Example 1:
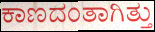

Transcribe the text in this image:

ಕಾಣದಂತಾಗಿತ್ತು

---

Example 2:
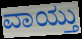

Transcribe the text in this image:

ವಾಯ್ತು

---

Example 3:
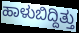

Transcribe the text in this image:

ಹಾಳುಬಿದ್ದಿತ್ತು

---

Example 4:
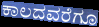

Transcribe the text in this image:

ಕಾಲದವರೆಗೂ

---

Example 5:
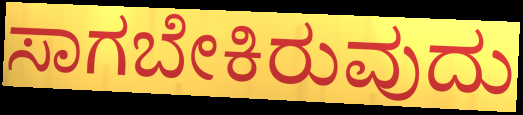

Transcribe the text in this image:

ಸಾಗಬೇಕಿರುವುದು